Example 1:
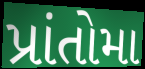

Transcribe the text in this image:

પ્રાંતોમા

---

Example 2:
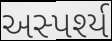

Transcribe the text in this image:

અસ્પર્શ્ય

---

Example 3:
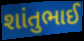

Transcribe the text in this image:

શાંતુભાઈ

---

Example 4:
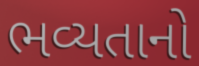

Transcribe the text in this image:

ભવ્યતાનો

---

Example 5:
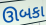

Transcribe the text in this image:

ઊબકા